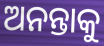
ଅନନ୍ତାକୁ